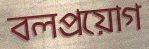
বলপ্রয়োগ